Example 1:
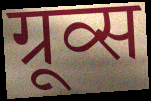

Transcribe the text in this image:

ग्रूव्स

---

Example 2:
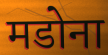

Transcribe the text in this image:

मडोना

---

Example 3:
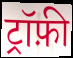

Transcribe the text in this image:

ट्रॉफ़ी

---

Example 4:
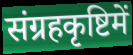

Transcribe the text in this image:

संग्रहकृष्टिमें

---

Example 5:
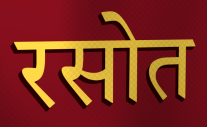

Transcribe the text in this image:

रसोत